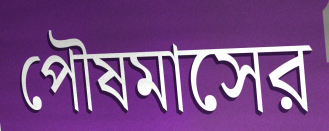
পৌষমাসের